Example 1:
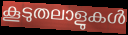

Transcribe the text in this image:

കൂടുതലാളുകൾ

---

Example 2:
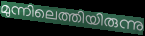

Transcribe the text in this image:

മുന്നിലെത്തിയിരുന്നു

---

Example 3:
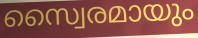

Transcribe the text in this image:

സ്വൈരമായും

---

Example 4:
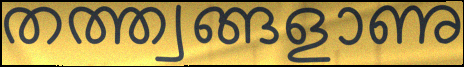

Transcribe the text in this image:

തത്ത്വങ്ങളാണു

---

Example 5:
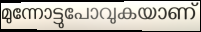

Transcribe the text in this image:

മുന്നോട്ടുപോവുകയാണ്